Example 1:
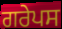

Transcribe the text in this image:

ਗਰੇਪਸ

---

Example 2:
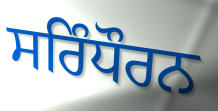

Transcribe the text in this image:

ਸਰਿੰਧੌਰਨ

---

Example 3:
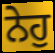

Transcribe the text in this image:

ਨੇਹੁ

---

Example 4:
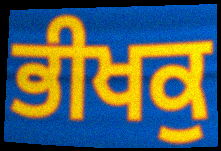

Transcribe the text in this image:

ਭੀਖਕੁ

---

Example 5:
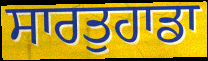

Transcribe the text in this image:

ਸਾਰਤੁਹਾਡਾ